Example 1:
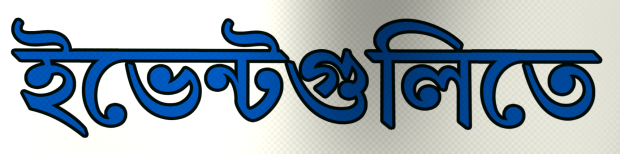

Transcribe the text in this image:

ইভেন্টগুলিতে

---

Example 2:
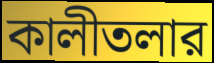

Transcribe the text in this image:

কালীতলার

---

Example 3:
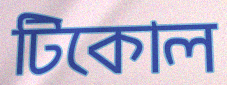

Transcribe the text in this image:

টিকোল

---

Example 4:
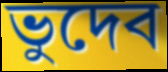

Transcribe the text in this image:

ভুদেব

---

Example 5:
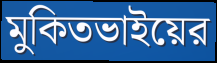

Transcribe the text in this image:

মুকিতভাইয়ের